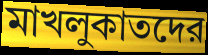
মাখলুকাতদের